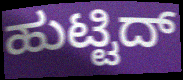
ಹುಟ್ಟಿದ್